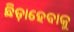
ଛିଡ଼ାହେବାକୁ